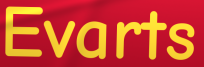
Evarts